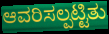
ಆವರಿಸಲ್ಪಟ್ಟಿತು